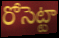
రోసెట్టా